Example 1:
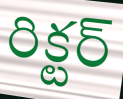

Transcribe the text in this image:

రిక్టర్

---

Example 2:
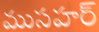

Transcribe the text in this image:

ముసహర్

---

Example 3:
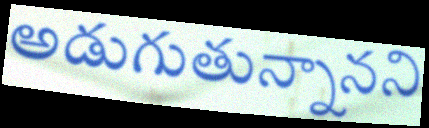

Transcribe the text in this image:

అడుగుతున్నానని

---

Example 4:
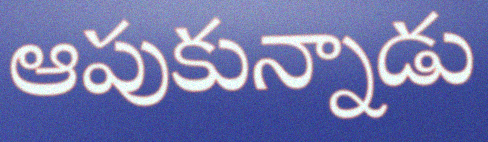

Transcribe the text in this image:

ఆపుకున్నాడు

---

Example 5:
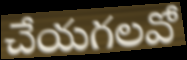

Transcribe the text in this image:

చేయగలవో